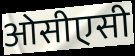
ओसीएसी